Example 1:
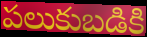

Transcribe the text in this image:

పలుకుబడికి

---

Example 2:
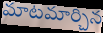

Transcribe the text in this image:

మాటమార్చిన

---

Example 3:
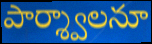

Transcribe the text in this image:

పార్శ్వాలనూ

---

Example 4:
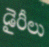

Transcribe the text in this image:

డైరీలు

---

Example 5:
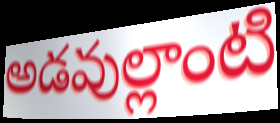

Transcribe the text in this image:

అడవుల్లాంటి